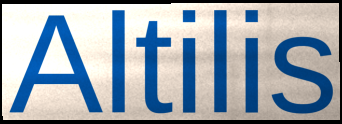
Altilis